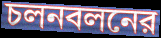
চলনবলনের